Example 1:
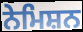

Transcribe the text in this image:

ਨੇਮਿਸ਼ਨ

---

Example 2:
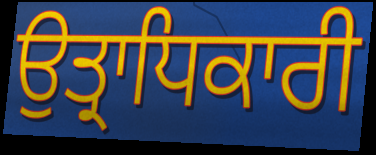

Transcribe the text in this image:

ਉਤ੍ਰਾਧਿਕਾਰੀ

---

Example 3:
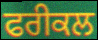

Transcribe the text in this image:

ਫਰੀਕਲ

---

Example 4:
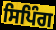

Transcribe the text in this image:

ਸਿਪਿੰਗ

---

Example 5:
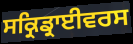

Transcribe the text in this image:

ਸਕ੍ਰਿਡ੍ਰਾਈਵਰਸ